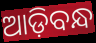
ଆଡ଼ିବନ୍ଧ